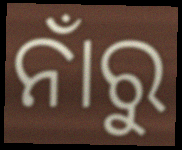
ନାଁରୁ